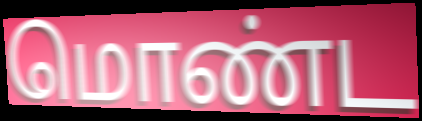
மொண்ட